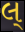
લ્